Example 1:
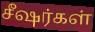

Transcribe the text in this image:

சீஷர்கள்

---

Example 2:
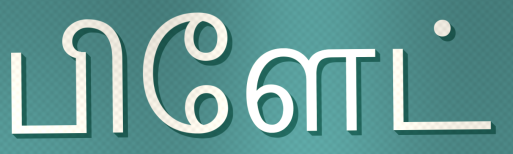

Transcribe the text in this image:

பிளேட்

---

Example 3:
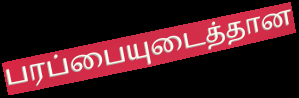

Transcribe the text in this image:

பரப்பையுடைத்தான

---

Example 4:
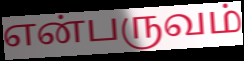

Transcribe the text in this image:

என்பருவம்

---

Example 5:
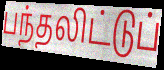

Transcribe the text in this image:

பந்தலிட்டுப்